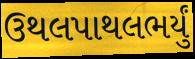
ઉથલપાથલભર્યું